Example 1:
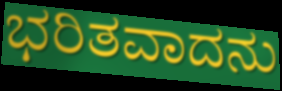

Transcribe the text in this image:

ಭರಿತವಾದನು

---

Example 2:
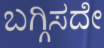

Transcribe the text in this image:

ಬಗ್ಗಿಸದೇ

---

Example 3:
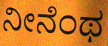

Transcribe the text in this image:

ನೀನೆಂಥ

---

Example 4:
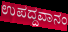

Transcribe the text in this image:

ಉಪದ್ದವಾನಂ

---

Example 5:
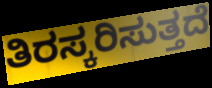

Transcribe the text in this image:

ತಿರಸ್ಕರಿಸುತ್ತದೆ